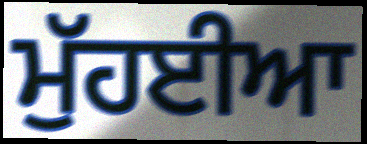
ਮੁੱਹਈਆ